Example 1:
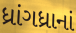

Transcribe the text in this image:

ધ્રાંગધ્રાનાં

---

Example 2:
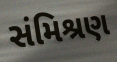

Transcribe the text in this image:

સંમિશ્રણ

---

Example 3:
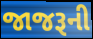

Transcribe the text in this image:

જાજરૂની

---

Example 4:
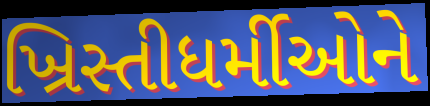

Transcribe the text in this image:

ખ્રિસ્તીધર્મીઓને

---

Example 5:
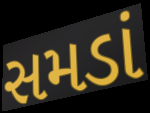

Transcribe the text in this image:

સમડાં